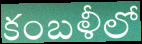
కంబళీలో